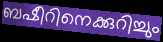
ബഷീറിനെക്കുറിച്ചും